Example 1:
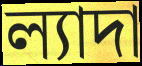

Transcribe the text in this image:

ল্যাদা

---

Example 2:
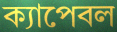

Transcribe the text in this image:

ক্যাপেবল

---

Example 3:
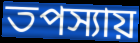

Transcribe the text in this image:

তপস্যায়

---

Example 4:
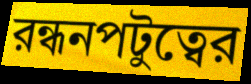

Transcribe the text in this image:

রন্ধনপটুত্বের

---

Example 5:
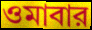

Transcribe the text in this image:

ওমাবার